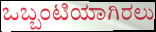
ಒಬ್ಬಂಟಿಯಾಗಿರಲು